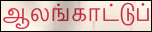
ஆலங்காட்டுப்